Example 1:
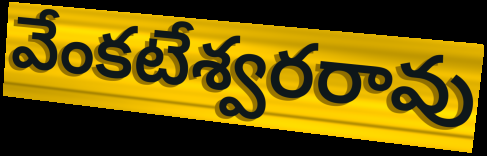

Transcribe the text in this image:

వేంకటేశ్వరరావు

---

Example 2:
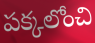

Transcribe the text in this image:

పక్కలోంచి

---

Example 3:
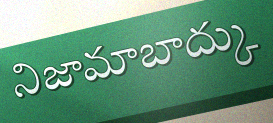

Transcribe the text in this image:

నిజామాబాద్కు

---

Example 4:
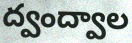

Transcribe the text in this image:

ద్వంద్వాల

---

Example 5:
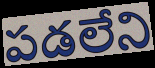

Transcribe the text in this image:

పడలేని